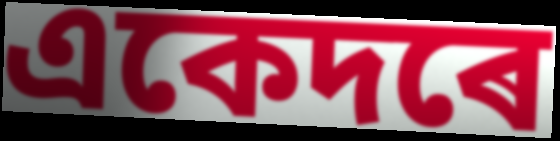
একেদৰে